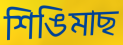
শিঙিমাছ